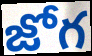
జోగ